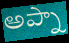
అప్నా